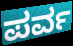
ಪರ್ವ